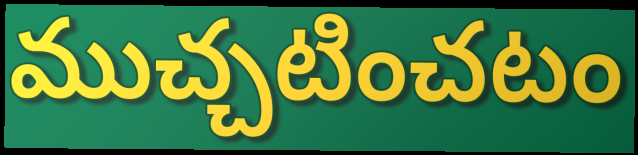
ముచ్చటించటం